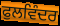
ਫੁਲਵਿੰਦਰ